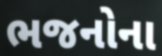
ભજનોના